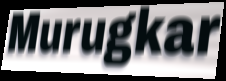
Murugkar